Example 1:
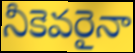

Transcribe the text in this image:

నీకెవరైనా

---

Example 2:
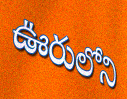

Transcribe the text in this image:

ఊరులోని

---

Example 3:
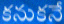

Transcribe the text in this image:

కనుకనే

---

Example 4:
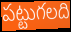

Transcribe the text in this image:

పట్టుగలది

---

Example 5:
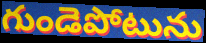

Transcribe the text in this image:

గుండెపోటును